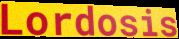
Lordosis